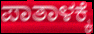
ಪಾತಾಳಕ್ಕೆ